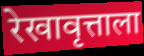
रेखावृत्ताला